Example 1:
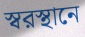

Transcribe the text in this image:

স্বরস্থানে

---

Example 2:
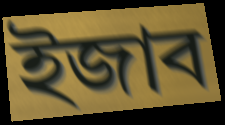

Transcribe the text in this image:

ইজাব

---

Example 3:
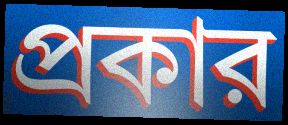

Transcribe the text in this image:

প্রকার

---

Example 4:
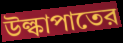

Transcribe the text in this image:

উল্কাপাতের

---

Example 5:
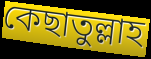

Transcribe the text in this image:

কেছাতুল্লাহ